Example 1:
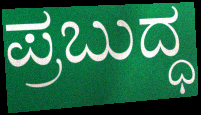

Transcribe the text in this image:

ಪ್ರಬುದ್ಧ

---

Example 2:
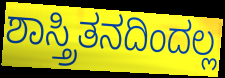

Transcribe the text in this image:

ಶಾಸ್ತ್ರಿತನದಿಂದಲ್ಲ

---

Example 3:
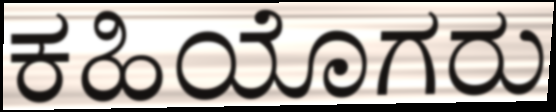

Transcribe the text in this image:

ಕಹಿಯೊಗರು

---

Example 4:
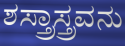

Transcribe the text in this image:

ಶಸ್ತ್ರಾಸ್ತ್ರವನು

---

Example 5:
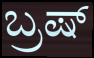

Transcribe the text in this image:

ಬ್ರಷ್